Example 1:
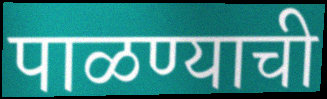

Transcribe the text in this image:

पाळण्याची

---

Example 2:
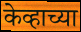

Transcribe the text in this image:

केव्हाच्या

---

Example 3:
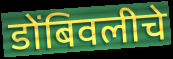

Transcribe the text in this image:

डोंबिवलीचे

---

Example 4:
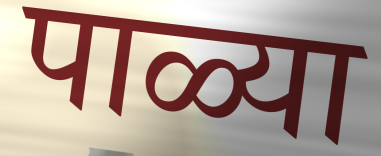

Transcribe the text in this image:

पाळ्या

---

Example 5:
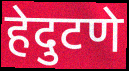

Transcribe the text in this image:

हेदुटणे